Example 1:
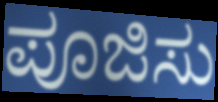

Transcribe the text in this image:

ಪೂಜಿಸು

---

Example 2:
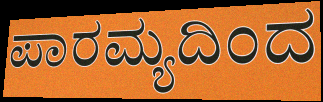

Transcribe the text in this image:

ಪಾರಮ್ಯದಿಂದ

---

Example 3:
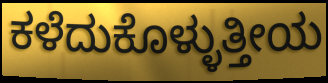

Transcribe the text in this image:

ಕಳೆದುಕೊಳ್ಳುತ್ತೀಯ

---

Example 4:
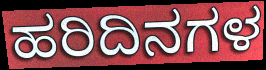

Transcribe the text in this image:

ಹರಿದಿನಗಳ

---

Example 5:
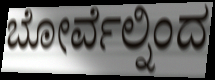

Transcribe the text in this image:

ಬೋರ್ವೆಲ್ನಿಂದ